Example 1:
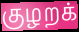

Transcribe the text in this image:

குழறக்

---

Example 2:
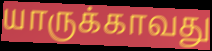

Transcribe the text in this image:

யாருக்காவது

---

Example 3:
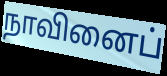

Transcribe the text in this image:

நாவினைப்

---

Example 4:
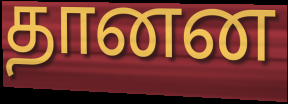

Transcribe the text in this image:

தானன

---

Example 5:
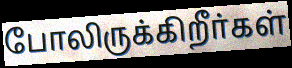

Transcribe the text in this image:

போலிருக்கிறீர்கள்